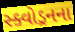
સ્ક્વોડ્રનના